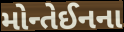
મોન્તેઈનના